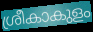
ശ്രീകാകുളം